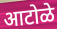
आटोळे